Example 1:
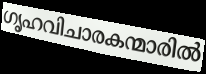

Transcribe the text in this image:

ഗൃഹവിചാരകന്മാരിൽ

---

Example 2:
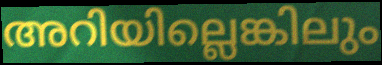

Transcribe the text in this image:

അറിയില്ലെങ്കിലും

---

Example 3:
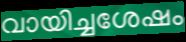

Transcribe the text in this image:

വായിച്ചശേഷം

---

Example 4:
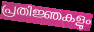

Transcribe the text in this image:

പ്രതിജ്ഞകളും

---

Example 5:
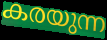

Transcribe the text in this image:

കരയുന്ന